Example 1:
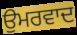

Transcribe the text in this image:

ਉਮਰਵਾਦ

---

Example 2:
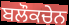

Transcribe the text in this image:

ਬਲੌਕਚੇਨ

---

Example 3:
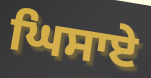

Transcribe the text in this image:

ਘਿਸਾਏ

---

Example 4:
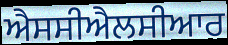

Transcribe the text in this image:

ਐਸਸੀਐਲਸੀਆਰ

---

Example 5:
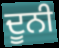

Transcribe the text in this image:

ਦੂਨੀ